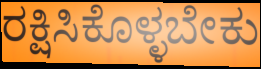
ರಕ್ಷಿಸಿಕೊಳ್ಳಬೇಕು